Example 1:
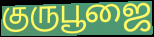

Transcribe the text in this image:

குருபூஜை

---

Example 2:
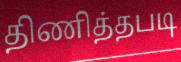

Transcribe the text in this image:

திணித்தபடி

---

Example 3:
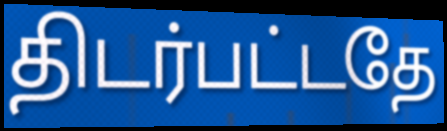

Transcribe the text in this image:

திடர்பட்டதே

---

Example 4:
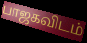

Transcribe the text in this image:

பாஜகவிடம்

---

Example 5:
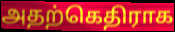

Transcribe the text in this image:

அதற்கெதிராக